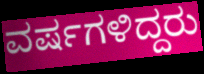
ವರ್ಷಗಳಿದ್ದರು